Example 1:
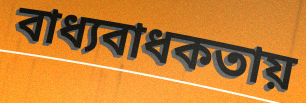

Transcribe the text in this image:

বাধ্যবাধকতায়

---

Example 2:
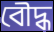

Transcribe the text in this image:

বৌদ্ধ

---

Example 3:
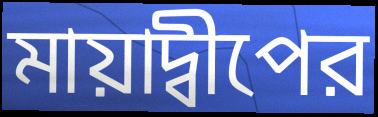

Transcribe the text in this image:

মায়াদ্বীপের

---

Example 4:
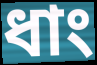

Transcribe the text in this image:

ধাং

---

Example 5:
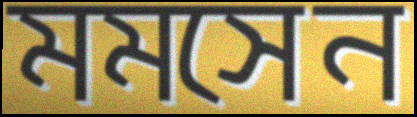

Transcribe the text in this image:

মমসেন